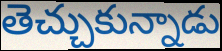
తెచ్చుకున్నాడు